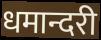
धमान्दरी